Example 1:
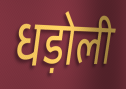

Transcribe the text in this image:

धड़ोली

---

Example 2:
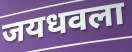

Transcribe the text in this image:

जयधवला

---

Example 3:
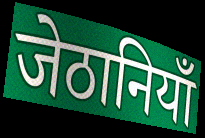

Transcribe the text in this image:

जेठानियाँ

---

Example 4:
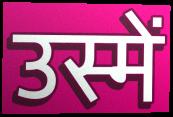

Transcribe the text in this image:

उस्में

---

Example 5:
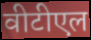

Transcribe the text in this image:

वीटीएल